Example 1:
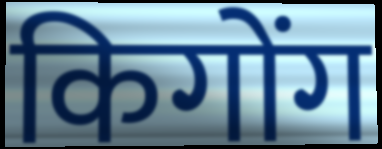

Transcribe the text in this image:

किगोंग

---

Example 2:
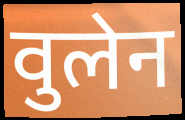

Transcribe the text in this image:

वुलेन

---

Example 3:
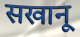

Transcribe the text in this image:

सखानू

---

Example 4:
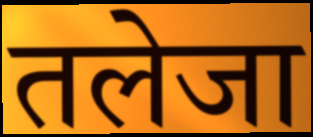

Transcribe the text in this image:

तलेजा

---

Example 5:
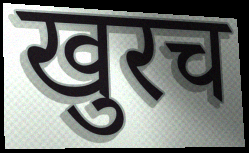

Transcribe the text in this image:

खुरच